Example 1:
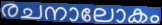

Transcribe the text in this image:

രചനാലോകം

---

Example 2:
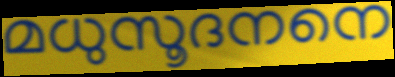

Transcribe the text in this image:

മധുസൂദനനെ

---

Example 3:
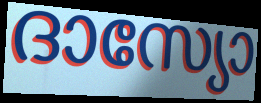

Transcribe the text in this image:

ദാസ്യോ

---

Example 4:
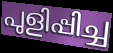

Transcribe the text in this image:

പുളിപ്പിച്ച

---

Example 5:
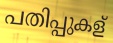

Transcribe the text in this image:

പതിപ്പുകള്